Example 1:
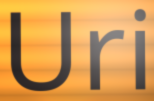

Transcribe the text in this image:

Uri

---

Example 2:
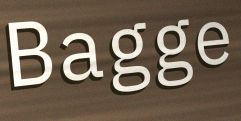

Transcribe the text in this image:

Bagge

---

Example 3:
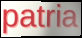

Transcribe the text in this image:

patria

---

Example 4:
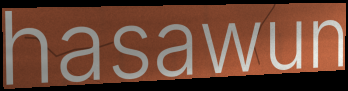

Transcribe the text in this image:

hasawun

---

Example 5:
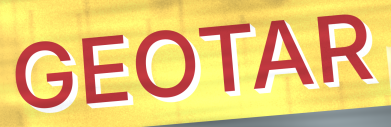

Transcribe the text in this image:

GEOTAR